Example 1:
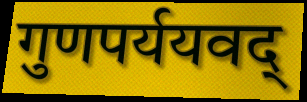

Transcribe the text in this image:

गुणपर्ययवद्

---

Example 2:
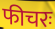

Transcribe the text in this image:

फीचरः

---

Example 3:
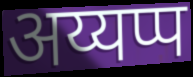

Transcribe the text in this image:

अय्यप्प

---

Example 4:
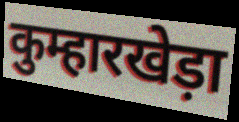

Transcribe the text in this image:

कुम्हारखेड़ा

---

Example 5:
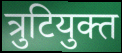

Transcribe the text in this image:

त्रुटियुक्त